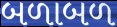
બળાબળ